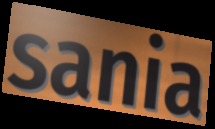
sania